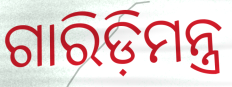
ଗାରିଡ଼ିମନ୍ତ୍ର